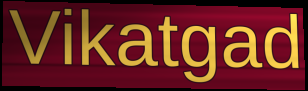
Vikatgad